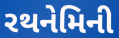
રથનેમિની